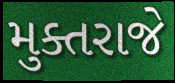
મુક્તરાજે